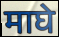
माघे